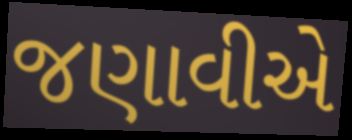
જણાવીએ